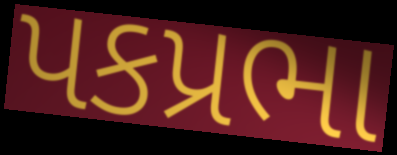
પકપ્રભા